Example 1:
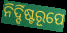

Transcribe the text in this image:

ନିର୍ଦ୍ଦିଷ୍ଟରୂପେ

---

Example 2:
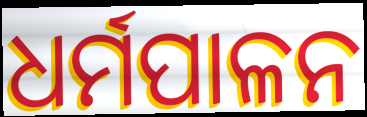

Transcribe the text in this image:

ଧର୍ମପାଳନ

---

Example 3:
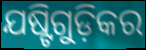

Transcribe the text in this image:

ଯଷ୍ଟିଗୁଡ଼ିକର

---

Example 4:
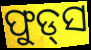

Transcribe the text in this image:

ଫୁଡ୍‌ସ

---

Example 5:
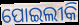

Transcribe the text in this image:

ପୋଇଲୀକି